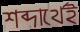
শব্দার্থেই